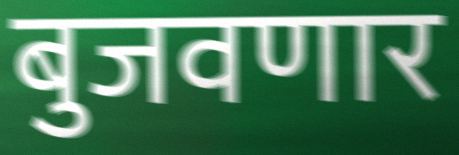
बुजवणार